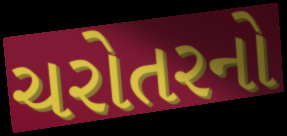
ચરોતરનો